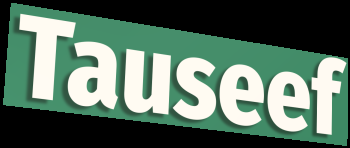
Tauseef